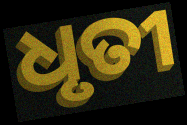
ଧୃତୀ